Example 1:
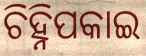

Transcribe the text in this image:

ଚିହ୍ନିପକାଇ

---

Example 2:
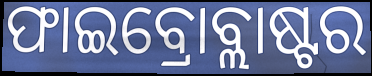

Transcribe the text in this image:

ଫାଇବ୍ରୋବ୍ଲାଷ୍ଟର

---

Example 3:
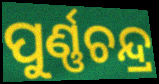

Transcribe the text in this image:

ପୁର୍ଣ୍ଣଚନ୍ଦ୍ର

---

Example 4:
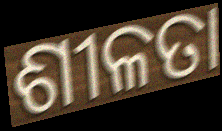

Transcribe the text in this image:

ଶୀଳତା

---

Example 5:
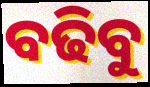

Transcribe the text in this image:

ବଢିବୁ